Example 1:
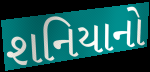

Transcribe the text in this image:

શનિયાનો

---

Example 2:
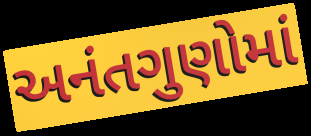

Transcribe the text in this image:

અનંતગુણોમાં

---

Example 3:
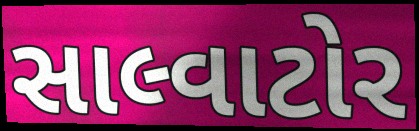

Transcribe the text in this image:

સાલ્વાટોર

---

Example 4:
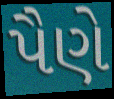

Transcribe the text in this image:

પૈણે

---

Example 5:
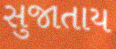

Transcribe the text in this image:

સુજાતાય